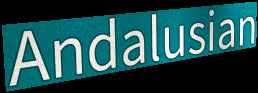
Andalusian